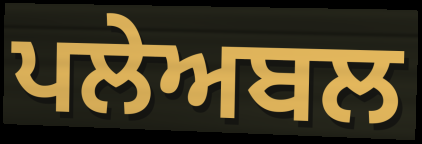
ਪਲੇਅਬਲ